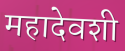
महादेवशी